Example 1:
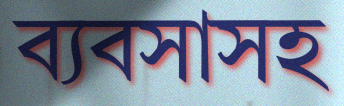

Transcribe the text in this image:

ব্যবসাসহ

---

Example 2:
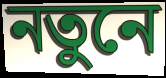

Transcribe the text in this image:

নতুনে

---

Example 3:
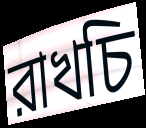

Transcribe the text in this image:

রাখচি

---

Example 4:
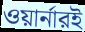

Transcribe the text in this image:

ওয়ার্নারই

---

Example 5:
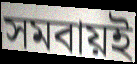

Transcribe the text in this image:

সমবায়ই